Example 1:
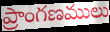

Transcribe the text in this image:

ప్రాంగణములు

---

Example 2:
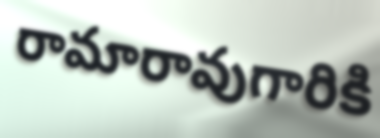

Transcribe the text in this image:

రామారావుగారికి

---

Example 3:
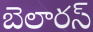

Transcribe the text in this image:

బెలారస్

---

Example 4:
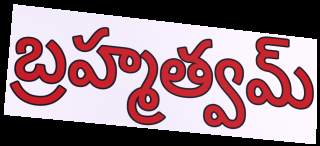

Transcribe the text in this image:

బ్రహ్మత్వమ్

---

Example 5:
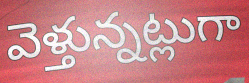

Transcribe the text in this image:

వెళ్తున్నట్లుగా